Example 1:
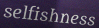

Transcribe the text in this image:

selfishness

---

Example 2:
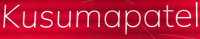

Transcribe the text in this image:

Kusumapatel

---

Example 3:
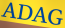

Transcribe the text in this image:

ADAG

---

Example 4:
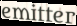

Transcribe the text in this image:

emitter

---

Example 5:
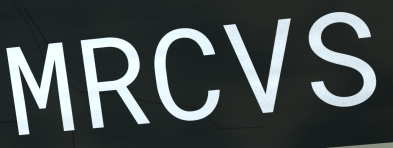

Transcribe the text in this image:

MRCVS